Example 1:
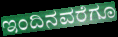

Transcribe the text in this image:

ಇಂದಿನವರೆಗೂ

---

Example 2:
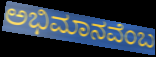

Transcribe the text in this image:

ಅಭಿಮಾನವೆಂಬ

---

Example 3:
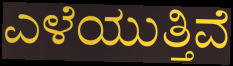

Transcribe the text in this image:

ಎಳೆಯುತ್ತಿವೆ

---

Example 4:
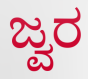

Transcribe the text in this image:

ಜ್ವರ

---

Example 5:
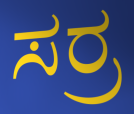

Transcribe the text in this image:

ಸರ್ರ